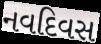
નવદિવસ